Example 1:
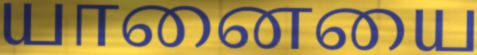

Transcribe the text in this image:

யானையை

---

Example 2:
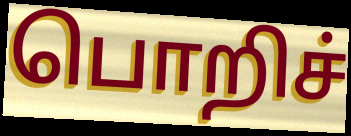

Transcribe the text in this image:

பொறிச்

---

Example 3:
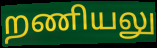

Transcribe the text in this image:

றணியலு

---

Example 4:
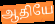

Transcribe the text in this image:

ஆதியே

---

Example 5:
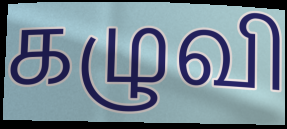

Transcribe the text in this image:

கழுவி